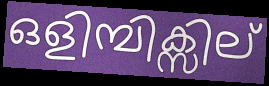
ഒളിമ്പിക്സില്